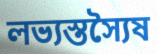
লভ্যস্তস্যৈষ